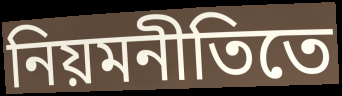
নিয়মনীতিতে